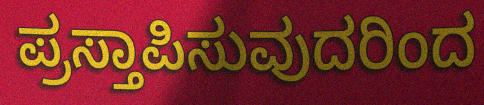
ಪ್ರಸ್ತಾಪಿಸುವುದರಿಂದ